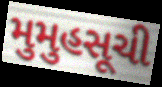
મુમુહસૂચી